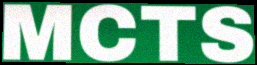
MCTS